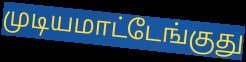
முடியமாட்டேங்குது